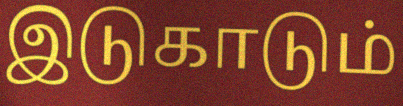
இடுகாடும்